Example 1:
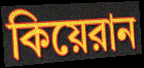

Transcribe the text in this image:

কিয়েরান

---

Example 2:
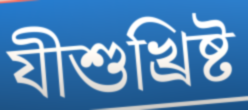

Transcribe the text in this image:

যীশুখ্রিষ্ট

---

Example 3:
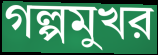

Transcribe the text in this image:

গল্পমুখর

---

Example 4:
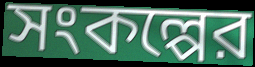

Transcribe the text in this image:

সংকল্পের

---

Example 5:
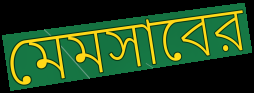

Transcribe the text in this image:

মেমসাবের